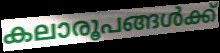
കലാരൂപങ്ങൾക്ക്